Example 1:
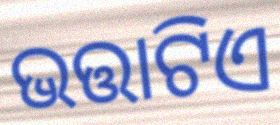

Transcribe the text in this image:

ଭତ୍ତାଟିଏ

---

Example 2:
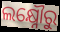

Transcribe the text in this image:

ଲକ୍ଷ୍ନୌରୁ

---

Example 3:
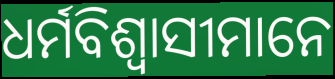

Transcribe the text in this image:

ଧର୍ମବିଶ୍ଵାସୀମାନେ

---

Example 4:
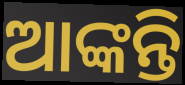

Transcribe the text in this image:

ଆଙ୍କନ୍ତି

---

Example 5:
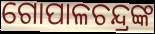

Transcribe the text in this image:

ଗୋପାଳଚନ୍ଦ୍ରଙ୍କ